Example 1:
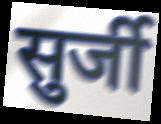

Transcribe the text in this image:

सुर्जी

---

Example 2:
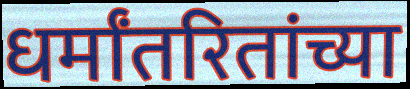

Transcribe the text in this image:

धर्मांतरितांच्या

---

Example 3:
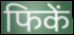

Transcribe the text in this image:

फिकें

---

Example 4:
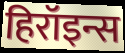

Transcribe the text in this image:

हिरॉइन्स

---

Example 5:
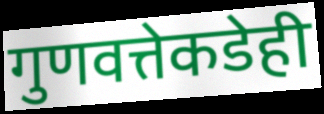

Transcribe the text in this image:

गुणवत्तेकडेही